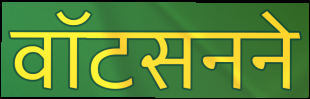
वॉटसनने